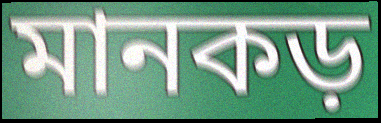
মানকড়